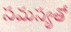
సమస్యతో